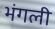
भंगली